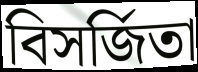
বিসর্জিতা